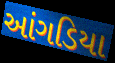
આંગડિયા